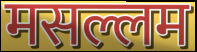
मसल्लम